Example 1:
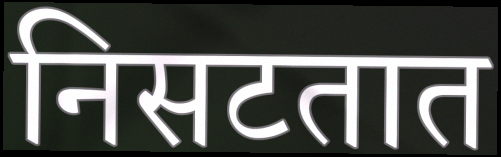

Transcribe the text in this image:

निसटतात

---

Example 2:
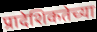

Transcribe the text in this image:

प्रादेशिकतेच्या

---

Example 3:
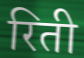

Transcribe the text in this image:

रिती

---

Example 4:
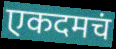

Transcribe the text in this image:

एकदमचं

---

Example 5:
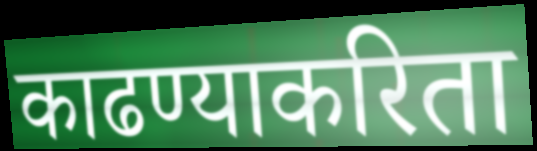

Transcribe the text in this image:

काढण्याकरिता